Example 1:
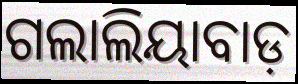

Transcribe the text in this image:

ଗଲାଲିୟାବାଡ଼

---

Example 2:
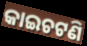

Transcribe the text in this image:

କାଇଚଟଣି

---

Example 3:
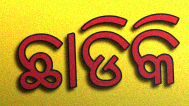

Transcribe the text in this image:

ଛାଡିକି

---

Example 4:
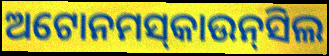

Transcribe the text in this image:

ଅଟୋନମସ୍‌କାଉନ୍‌ସିଲ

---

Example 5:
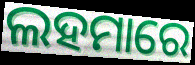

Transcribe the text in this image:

ଲହମାରେ